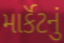
માર્કૅટનું